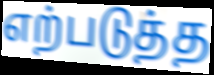
எற்படுத்த